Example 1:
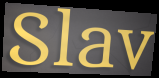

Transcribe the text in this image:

Slav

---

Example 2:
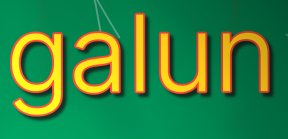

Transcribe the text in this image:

galun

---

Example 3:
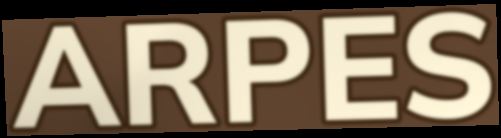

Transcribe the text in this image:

ARPES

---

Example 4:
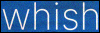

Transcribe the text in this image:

whish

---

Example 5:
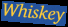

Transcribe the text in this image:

Whiskey